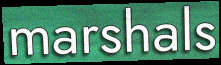
marshals